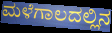
ಮಳೆಗಾಲದಲ್ಲಿನ